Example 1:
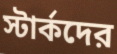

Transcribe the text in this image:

স্টার্কদের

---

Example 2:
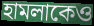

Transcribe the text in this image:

হামলাকেও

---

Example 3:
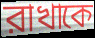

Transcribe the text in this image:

রাখাকে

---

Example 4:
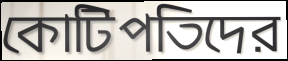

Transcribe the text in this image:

কোটিপতিদের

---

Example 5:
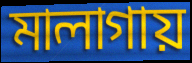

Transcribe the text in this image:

মালাগায়